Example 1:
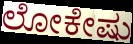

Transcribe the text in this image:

ಲೋಕೇಷು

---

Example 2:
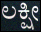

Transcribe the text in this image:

ಲಕ್ಷೀ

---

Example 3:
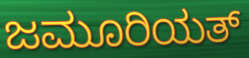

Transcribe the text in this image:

ಜಮೂರಿಯತ್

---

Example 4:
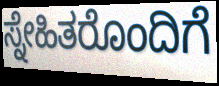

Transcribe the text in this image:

ಸ್ನೇಹಿತರೊಂದಿಗೆ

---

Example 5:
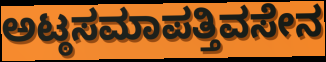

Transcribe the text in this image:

ಅಟ್ಠಸಮಾಪತ್ತಿವಸೇನ